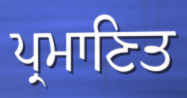
ਪ੍ਰਮਾਣਿਤ